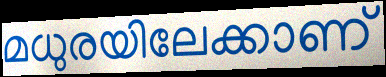
മധുരയിലേക്കാണ്